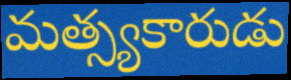
మత్స్యకారుడు